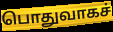
பொதுவாகச்